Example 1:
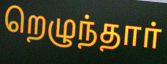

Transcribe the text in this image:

றெழுந்தார்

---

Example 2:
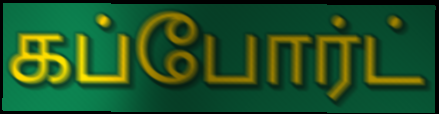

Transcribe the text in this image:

கப்போர்ட்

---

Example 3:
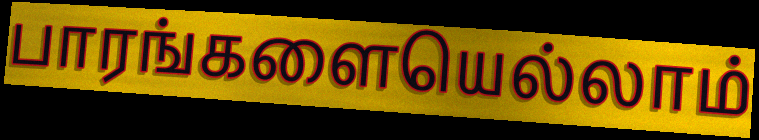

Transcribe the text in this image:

பாரங்களையெல்லாம்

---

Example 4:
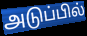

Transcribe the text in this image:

அடுப்பில்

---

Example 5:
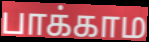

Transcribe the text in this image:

பாக்காம